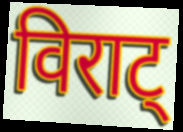
विराट्